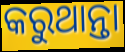
କରୁଥାନ୍ତା